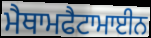
ਮੈਥਾਮਫੈਟਾਮਾਈਨ